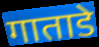
गाताडे